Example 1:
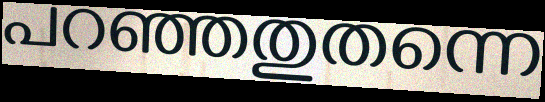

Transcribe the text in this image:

പറഞ്ഞതുതന്നെ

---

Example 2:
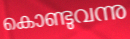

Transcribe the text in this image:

കൊണ്ടുവന്നു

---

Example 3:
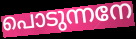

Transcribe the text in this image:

പൊടുന്നനേ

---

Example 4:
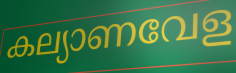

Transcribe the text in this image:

കല്യാണവേള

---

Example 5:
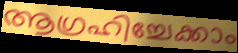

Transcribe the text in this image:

ആഗ്രഹിച്ചേക്കാം